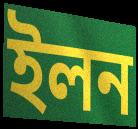
ইলন